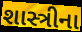
શાસ્ત્રીના